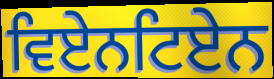
ਵਿਏਨਟਿਏਨ